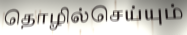
தொழில்செய்யும்